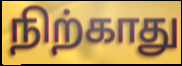
நிற்காது